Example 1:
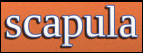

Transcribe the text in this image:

scapula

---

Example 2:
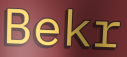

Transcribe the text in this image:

Bekr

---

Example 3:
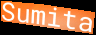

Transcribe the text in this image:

Sumita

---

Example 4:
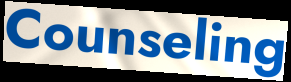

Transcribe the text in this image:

Counseling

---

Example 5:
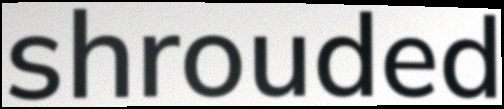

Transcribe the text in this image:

shrouded